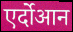
एर्दोआन